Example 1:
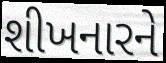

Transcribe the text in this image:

શીખનારને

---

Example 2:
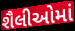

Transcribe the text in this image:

શૈલીઓમાં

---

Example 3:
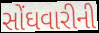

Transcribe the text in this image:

સોંઘવારીની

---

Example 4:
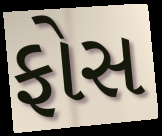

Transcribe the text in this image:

ફોસ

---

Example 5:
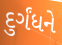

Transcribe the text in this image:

દુર્ગંધને